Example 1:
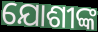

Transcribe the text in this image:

ଯୋଶୀଙ୍କ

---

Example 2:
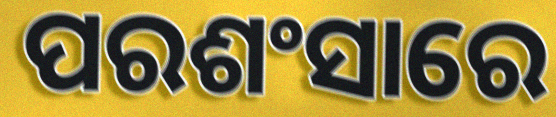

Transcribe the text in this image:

ପରଶଂସାରେ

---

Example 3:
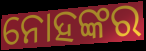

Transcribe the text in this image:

ନୋହଙ୍କର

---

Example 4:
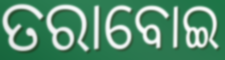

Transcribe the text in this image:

ତରାବୋଇ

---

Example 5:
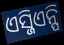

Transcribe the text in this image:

ଏସ୍ଜିଏନ୍ପି